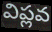
విప్లవ